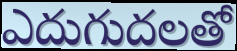
ఎదుగుదలతో